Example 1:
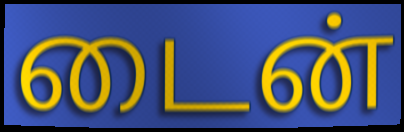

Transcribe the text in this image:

டைன்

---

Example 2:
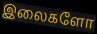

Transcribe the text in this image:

இலைகளோ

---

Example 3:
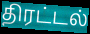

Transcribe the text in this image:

திரட்டல்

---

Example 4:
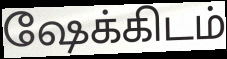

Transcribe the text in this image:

ஷேக்கிடம்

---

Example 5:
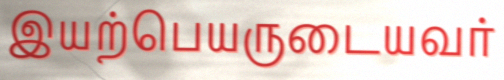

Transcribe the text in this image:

இயற்பெயருடையவர்